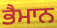
ਭੈਮਾਨ